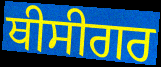
ਥੀਸੀਗਰ